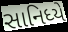
સાનિધ્યે